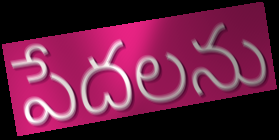
పేదలను